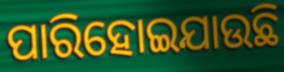
ପାରିହୋଇଯାଉଛି